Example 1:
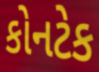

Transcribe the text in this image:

કોનટેક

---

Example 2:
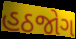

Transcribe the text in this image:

હઠજોગ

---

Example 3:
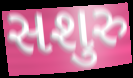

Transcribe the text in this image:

સશુરુ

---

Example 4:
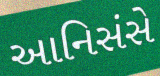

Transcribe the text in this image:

આનિસંસે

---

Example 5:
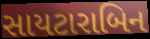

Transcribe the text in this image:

સાયટારાબિન